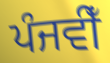
ਪੰਜਵੀਁ